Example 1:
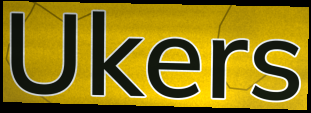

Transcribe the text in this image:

Ukers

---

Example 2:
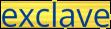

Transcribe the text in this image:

exclave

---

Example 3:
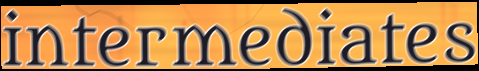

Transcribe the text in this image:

intermediates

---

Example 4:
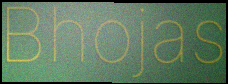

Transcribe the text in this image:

Bhojas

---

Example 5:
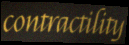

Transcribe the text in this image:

contractility